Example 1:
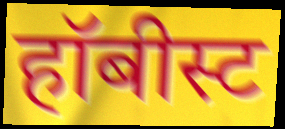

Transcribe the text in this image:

हॉबीस्ट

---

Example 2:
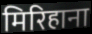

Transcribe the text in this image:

मिरिहाना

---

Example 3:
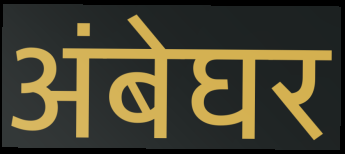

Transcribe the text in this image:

अंबेघर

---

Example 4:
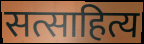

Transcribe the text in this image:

सत्साहित्य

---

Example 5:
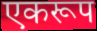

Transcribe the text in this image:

एकरूप